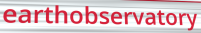
earthobservatory